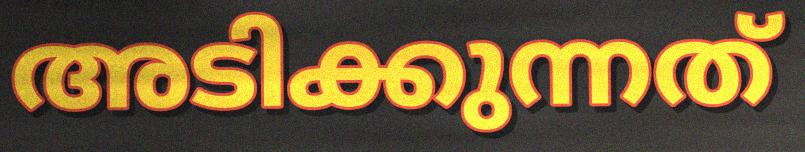
അടിക്കുന്നത്